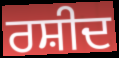
ਰਸ਼ੀਦ